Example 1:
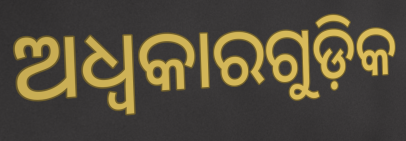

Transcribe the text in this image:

ଅଧ୍ବକାରଗୁଡ଼ିକ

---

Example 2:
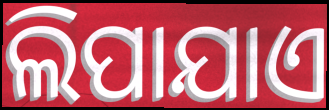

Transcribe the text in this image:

ଲିପାଯାଏ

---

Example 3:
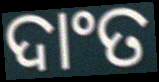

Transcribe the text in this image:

ଦାଂତ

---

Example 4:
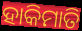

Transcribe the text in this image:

ହାକିମାତି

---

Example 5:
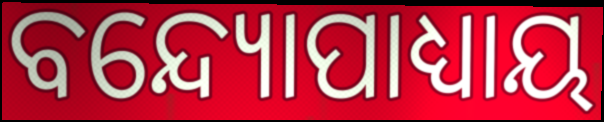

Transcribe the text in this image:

ବନ୍ଦ୍ୟୋପାଧ୍ୟାୟ